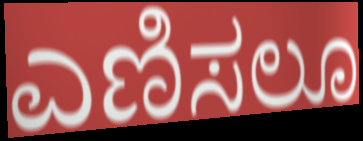
ಎಣಿಸಲೂ